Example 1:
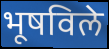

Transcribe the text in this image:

भूषविले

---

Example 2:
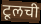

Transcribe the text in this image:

टूलची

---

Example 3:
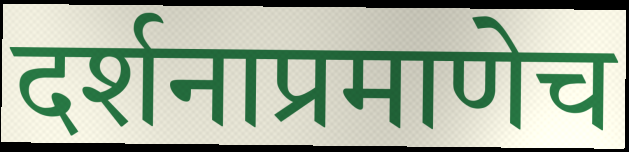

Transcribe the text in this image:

दर्शनाप्रमाणेच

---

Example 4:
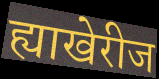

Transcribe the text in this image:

ह्याखेरीज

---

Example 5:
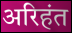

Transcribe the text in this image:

अरिहंत